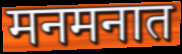
मनमनात